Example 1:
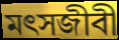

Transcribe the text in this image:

মৎসজীবী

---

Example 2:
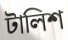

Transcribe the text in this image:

টালিশ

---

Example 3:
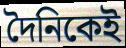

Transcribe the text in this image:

দৈনিকেই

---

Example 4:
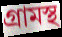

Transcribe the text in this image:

গ্রামস্থ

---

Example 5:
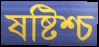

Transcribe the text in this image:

ষষ্টিশ্চ